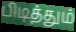
பிடித்தும்